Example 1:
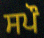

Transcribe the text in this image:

ਸਪੌ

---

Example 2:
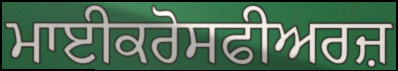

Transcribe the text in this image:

ਮਾਈਕਰੋਸਫੀਅਰਜ਼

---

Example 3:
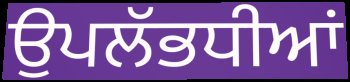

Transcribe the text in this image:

ਉਪਲੱਭਧੀਆਂ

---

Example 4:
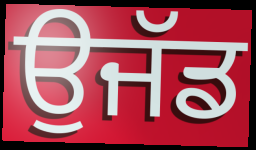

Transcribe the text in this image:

ਉਜੱਡ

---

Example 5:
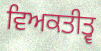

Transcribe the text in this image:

ਵਿਅਕਤੀਤ੍ਵ